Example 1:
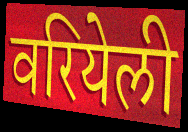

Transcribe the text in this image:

वरियेली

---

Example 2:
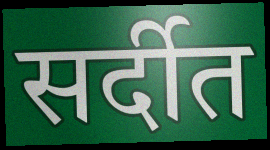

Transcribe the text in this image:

सर्दीत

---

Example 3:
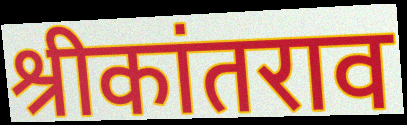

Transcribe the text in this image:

श्रीकांतराव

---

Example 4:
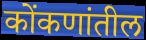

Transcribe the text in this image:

कोंकणांतील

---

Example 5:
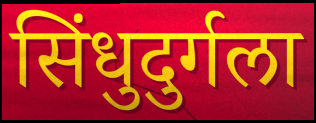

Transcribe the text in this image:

सिंधुदुर्गला